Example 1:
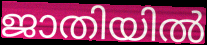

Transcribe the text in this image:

ജാതിയിൽ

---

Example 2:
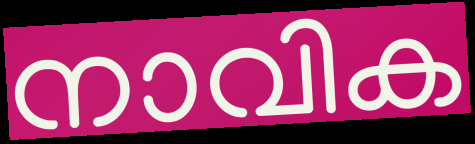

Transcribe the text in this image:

നാവിക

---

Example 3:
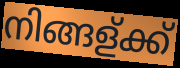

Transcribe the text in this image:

നിങ്ങള്ക്ക്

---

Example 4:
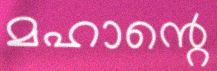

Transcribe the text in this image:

മഹാന്റെ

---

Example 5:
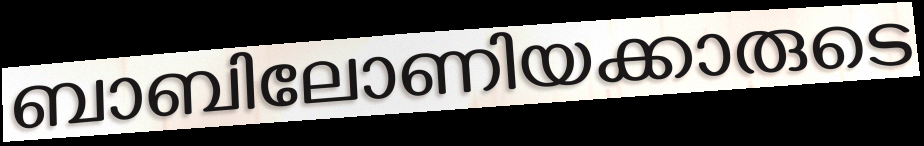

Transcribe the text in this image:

ബാബിലോണിയക്കാരുടെ